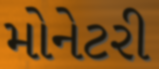
મોનેટરી